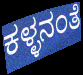
ಕಳ್ಳನಂತೆ